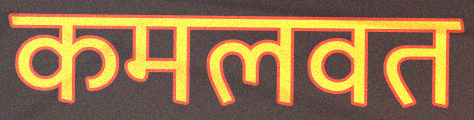
कमलवत